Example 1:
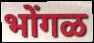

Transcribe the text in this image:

भोंगळ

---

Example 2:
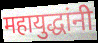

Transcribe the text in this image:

महायुद्धांनी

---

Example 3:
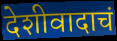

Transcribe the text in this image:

देशीवादाचं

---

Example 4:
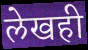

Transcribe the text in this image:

लेखही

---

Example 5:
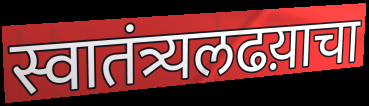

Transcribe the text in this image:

स्वातंत्र्यलढय़ाचा